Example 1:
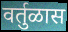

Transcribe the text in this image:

वर्तुळास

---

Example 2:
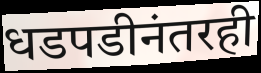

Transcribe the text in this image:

धडपडीनंतरही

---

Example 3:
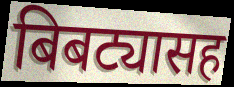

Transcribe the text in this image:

बिबट्यासह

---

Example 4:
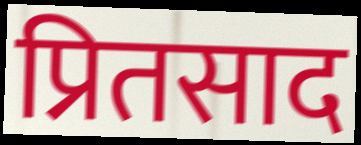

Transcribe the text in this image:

प्रितसाद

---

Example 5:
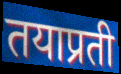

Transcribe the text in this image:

तयाप्रती